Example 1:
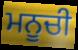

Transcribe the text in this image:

ਮਨੂਚੀ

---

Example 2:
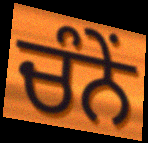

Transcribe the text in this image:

ਚੰਨੇਂ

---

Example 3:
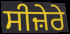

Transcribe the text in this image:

ਸੀਜ਼ੇਰੇ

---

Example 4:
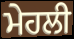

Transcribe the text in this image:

ਮੇਹਲੀ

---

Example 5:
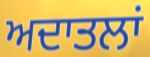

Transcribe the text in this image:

ਅਦਾਤਲਾਂ